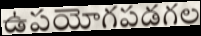
ఉపయోగపడగల